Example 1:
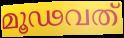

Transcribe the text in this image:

മൂഢവത്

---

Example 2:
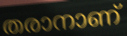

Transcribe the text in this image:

തരാനാണ്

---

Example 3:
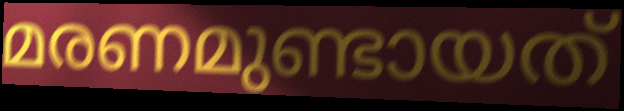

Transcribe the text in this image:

മരണമുണ്ടായത്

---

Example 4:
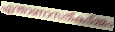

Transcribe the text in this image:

എന്താണാസത്കര്മ്മം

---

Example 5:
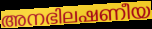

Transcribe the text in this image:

അനഭിലഷണീയ